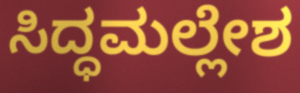
ಸಿದ್ಧಮಲ್ಲೇಶ